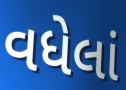
વધેલાં